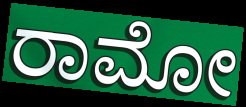
ರಾಮೋ